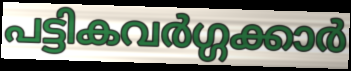
പട്ടികവർഗ്ഗക്കാർ